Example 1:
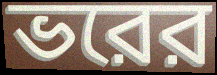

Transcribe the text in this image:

ভরের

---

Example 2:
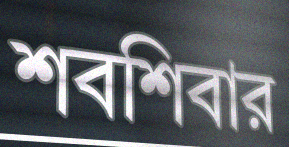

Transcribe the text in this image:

শবশিবার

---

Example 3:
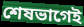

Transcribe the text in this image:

শেষভাগেই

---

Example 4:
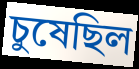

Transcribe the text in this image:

চুষেছিল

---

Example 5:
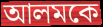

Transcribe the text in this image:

আলমকে